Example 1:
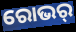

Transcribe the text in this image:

ରୋଭର୍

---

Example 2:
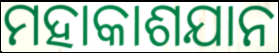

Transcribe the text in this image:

ମହାକାଶଯାନ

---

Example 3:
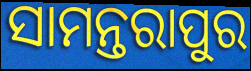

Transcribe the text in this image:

ସାମନ୍ତରାପୁର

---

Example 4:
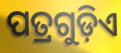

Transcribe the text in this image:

ପତ୍ରଗୁଡ଼ିଏ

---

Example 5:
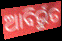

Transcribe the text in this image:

ଆବିର୍ଭୁତ